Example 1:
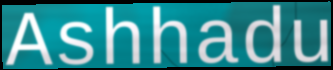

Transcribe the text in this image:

Ashhadu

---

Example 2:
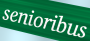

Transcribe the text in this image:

senioribus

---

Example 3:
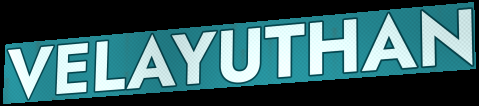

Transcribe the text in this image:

VELAYUTHAN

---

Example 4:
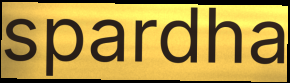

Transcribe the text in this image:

spardha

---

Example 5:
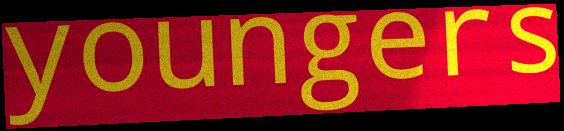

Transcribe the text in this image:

youngers